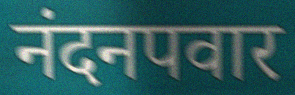
नंदनपवार